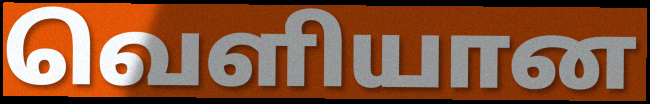
வெளியான